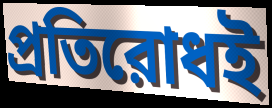
প্রতিরোধই